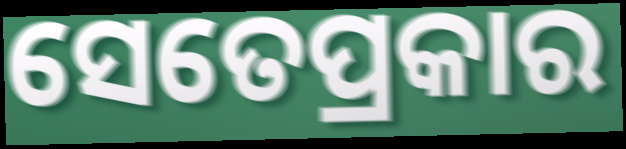
ସେତେପ୍ରକାର